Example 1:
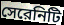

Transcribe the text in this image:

সেরেনিটি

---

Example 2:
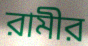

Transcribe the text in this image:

রামীর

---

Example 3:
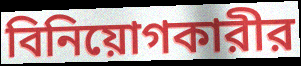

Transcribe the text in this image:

বিনিয়োগকারীর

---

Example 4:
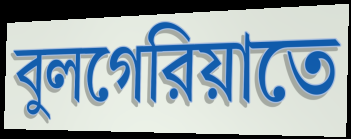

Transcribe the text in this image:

বুলগেরিয়াতে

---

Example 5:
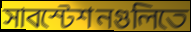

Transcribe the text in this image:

সাবস্টেশনগুলিতে